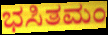
ಭಸಿತಮಂ